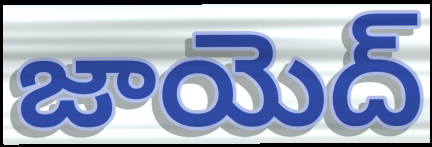
జాయెద్